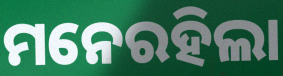
ମନେରହିଲା